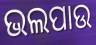
ଭଲପାଉ